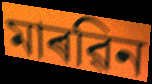
মাৰৱিন